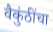
वैकुंठींचा